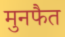
मुनफैत